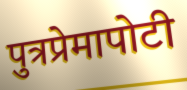
पुत्रप्रेमापोटी